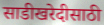
साडीखरेदीसाठी